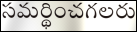
సమర్థించగలరు